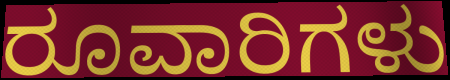
ರೂವಾರಿಗಳು